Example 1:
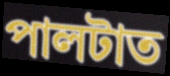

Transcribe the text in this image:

পালটাত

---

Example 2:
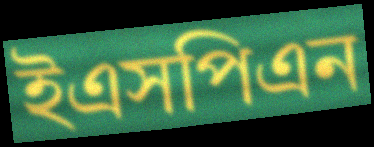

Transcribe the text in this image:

ইএসপিএন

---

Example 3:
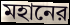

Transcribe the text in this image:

মহানের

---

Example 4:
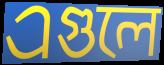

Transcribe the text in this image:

এগুলে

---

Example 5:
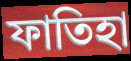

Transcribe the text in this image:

ফাতিহা